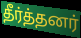
தீர்த்தனர்